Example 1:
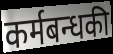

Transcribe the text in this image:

कर्मबन्धकी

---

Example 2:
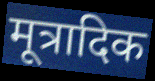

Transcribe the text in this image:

मूत्रादिक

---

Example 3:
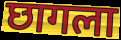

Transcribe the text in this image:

छागला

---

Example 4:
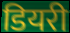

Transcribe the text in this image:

डियरी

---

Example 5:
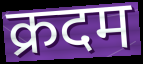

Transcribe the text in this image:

क्रदम